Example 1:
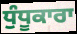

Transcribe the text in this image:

ਧੁੰਧੂਕਾਰਾ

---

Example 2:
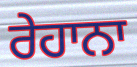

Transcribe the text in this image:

ਰੇਹਾਨਾ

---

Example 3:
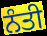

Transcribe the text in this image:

ਨੰਤੀ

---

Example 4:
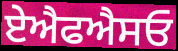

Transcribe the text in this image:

ਏਐਫਐਸਓ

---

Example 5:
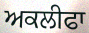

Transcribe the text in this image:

ਅਕਲੀਫਾ